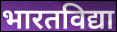
भारतविद्या